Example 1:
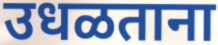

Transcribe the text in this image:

उधळताना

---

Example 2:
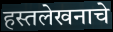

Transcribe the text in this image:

हस्तलेखनाचे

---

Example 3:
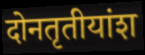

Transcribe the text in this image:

दोनतृतीयांश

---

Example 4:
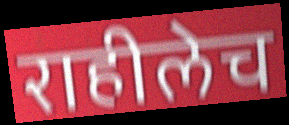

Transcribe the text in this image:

राहीलेच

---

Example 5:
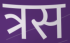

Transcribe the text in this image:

त्रस